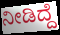
ನೀಡಿದ್ದೆ